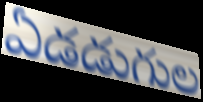
ఏడడుగుల